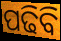
ପଢିବି